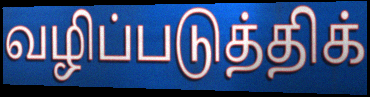
வழிப்படுத்திக்